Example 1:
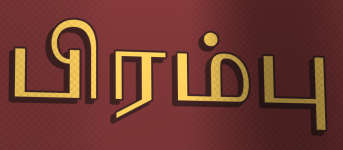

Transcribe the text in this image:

பிரம்பு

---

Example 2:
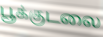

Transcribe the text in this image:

பூக்குடலை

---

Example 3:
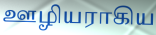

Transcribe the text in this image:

ஊழியராகிய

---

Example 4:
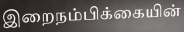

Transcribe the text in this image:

இறைநம்பிக்கையின்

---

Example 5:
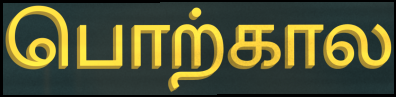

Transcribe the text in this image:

பொற்கால